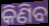
କିଣିବ